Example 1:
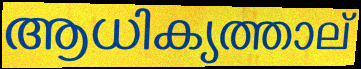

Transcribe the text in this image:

ആധിക്യത്താല്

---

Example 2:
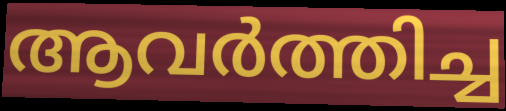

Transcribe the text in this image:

ആവർത്തിച്ച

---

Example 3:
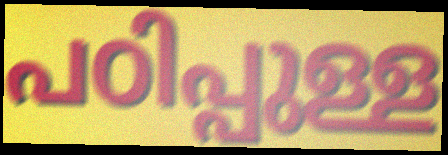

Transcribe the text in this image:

പഠിപ്പുള്ള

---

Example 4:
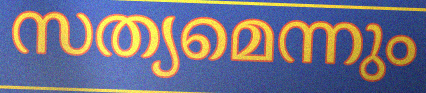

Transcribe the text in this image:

സത്യമെന്നും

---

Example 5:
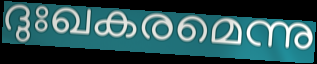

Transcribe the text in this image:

ദുഃഖകരമെന്നു